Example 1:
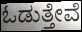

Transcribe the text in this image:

ಓಡುತ್ತೇವೆ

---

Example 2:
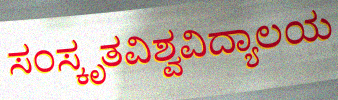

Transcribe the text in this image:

ಸಂಸ್ಕೃತವಿಶ್ವವಿದ್ಯಾಲಯ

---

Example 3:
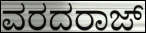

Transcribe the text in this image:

ವರದರಾಜ್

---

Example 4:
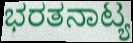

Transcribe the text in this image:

ಭರತನಾಟ್ಯ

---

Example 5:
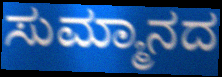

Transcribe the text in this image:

ಸುಮ್ಮಾನದ